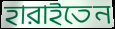
হারাইতেন